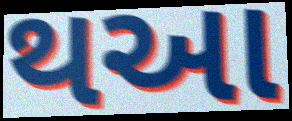
થઆ